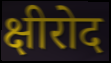
क्षीरोद